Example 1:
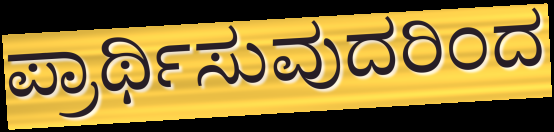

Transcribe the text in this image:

ಪ್ರಾರ್ಥಿಸುವುದರಿಂದ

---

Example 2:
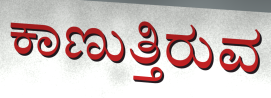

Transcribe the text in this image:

ಕಾಣುತ್ತಿರುವ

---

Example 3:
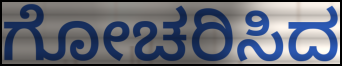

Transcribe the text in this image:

ಗೋಚರಿಸಿದ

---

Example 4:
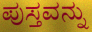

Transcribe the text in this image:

ಪುಸ್ತವನ್ನು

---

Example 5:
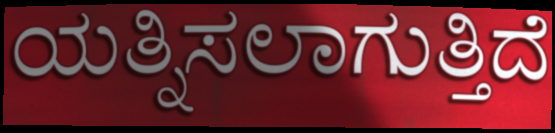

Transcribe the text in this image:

ಯತ್ನಿಸಲಾಗುತ್ತಿದೆ